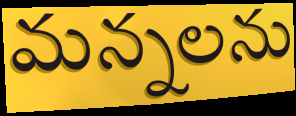
మన్నలను